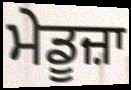
ਮੇਡੂਜ਼ਾ